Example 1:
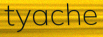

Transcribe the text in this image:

tyache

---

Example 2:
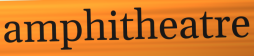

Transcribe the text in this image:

amphitheatre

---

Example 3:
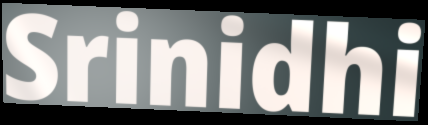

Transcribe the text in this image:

Srinidhi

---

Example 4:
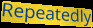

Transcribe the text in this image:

Repeatedly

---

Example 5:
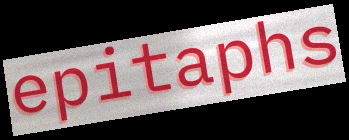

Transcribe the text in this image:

epitaphs